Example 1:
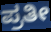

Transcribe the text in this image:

ಪ್ರತೀ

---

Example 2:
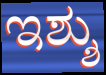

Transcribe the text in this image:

ಇಶ್ಶು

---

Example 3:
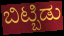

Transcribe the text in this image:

ಬಿಟ್ಬಿಡು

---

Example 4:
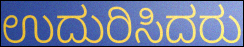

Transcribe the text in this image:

ಉದುರಿಸಿದರು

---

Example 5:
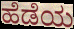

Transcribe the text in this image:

ಹೆಡೆಯ